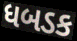
ધબડક